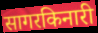
सागरकिनारी